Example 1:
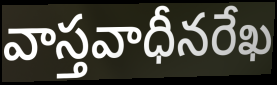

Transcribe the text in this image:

వాస్తవాధీనరేఖ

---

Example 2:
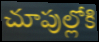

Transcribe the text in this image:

చూపుల్లోకి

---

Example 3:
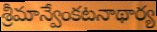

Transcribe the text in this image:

శ్రీమాన్వేంకటనాథార్య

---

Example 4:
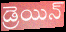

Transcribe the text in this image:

డ్రెయిన్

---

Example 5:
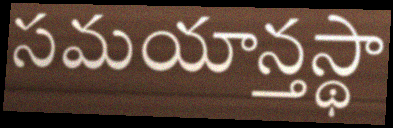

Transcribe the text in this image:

సమయాన్తస్థా